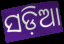
ସଡ଼ିଆ